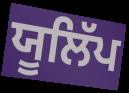
ਯੂਲਿੱਪ